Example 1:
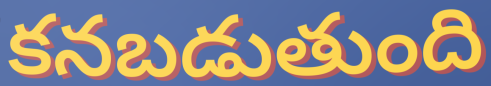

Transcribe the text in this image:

కనబడుతుంది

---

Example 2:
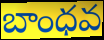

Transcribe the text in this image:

బాంధవ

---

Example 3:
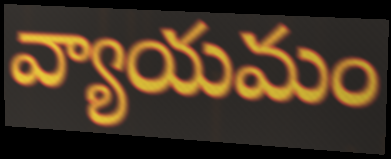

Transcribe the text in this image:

వ్యాయమం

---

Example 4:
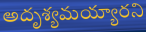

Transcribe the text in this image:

అదృశ్యమయ్యారని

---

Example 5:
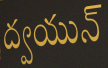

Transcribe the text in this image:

ద్వయున్